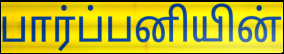
பார்ப்பனியின்